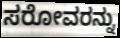
ಸರೋವರನ್ನು